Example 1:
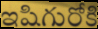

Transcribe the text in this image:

ఇషిగురోకి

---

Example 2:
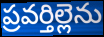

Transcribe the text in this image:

ప్రవర్తిల్లెను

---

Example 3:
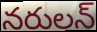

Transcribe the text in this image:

నరులన్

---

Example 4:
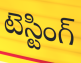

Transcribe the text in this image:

టెస్టింగ్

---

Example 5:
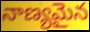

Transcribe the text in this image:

నాణ్యమైన